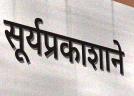
सूर्यप्रकाशाने